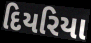
દિયરિયા